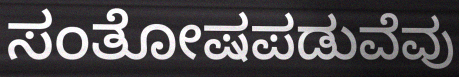
ಸಂತೋಷಪಡುವೆವು